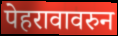
पेहरावावरुन